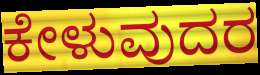
ಕೇಳುವುದರ